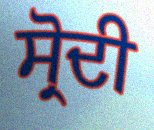
ਸ੍ਰੋਦੀ